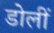
डोलीं